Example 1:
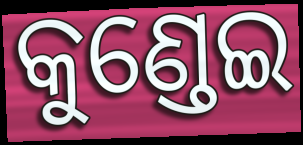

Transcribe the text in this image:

କୁଣ୍ଡେଇ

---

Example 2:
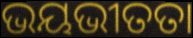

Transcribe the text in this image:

ଭୟଭୀତତା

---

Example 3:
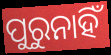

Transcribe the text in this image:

ପୁରୁନାହିଁ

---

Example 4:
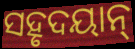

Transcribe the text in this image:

ସହୃଦୟାନ୍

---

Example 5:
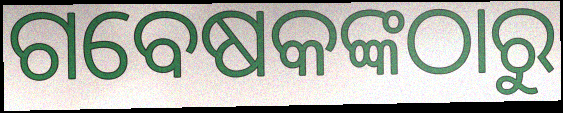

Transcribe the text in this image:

ଗବେଷକଙ୍କଠାରୁ